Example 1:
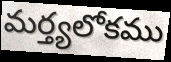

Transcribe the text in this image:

మర్త్యలోకము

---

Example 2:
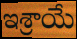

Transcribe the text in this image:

ఇశ్రాయే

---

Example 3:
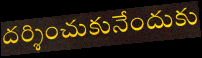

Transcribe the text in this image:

దర్శించుకునేందుకు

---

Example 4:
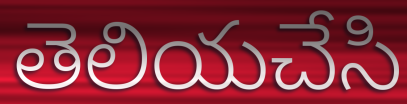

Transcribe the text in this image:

తెలియచేసి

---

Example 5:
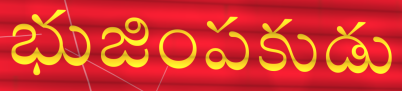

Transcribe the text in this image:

భుజింపకుడు